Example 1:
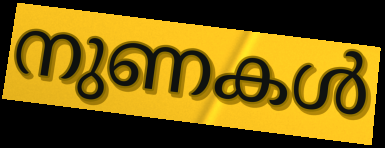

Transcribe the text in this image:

നുണകൾ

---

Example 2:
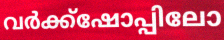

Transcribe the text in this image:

വർക്ക്ഷോപ്പിലോ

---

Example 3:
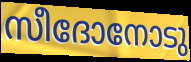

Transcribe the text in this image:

സീദോനോടു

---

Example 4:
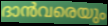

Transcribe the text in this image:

ദാൻവരെയും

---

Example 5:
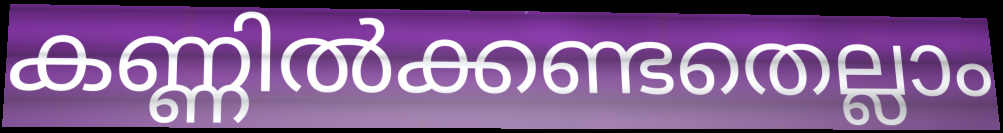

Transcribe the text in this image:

കണ്ണിൽക്കണ്ടതെല്ലാം